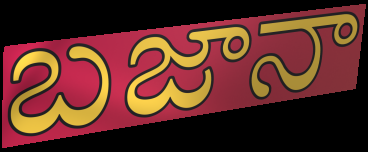
బజానా